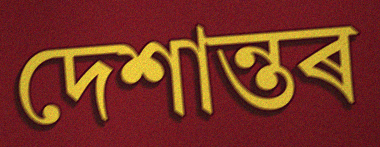
দেশান্তৰ